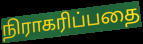
நிராகரிப்பதை